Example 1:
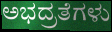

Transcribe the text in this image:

ಅಭದ್ರತೆಗಳು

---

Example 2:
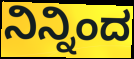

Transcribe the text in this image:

ನಿನ್ನಿಂದ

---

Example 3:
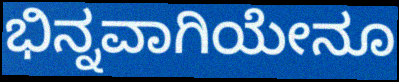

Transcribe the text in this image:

ಭಿನ್ನವಾಗಿಯೇನೂ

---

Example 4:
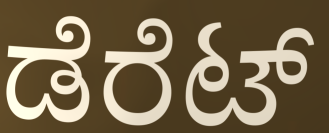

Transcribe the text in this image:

ಡೆರೆಟ್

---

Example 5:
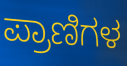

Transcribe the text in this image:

ಪ್ರಾಣಿಗಳ